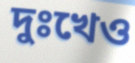
দুঃখেও